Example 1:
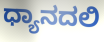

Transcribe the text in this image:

ಧ್ಯಾನದಲಿ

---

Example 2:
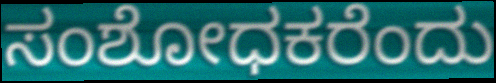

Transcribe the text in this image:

ಸಂಶೋಧಕರೆಂದು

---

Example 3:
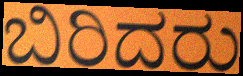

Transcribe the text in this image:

ಬಿರಿದರು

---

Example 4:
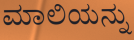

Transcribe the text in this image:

ಮಾಲಿಯನ್ನು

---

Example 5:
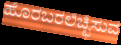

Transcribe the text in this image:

ಹೊರಬರಲಿಚ್ಛಿಸುವ